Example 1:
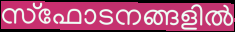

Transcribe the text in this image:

സ്ഫോടനങ്ങളിൽ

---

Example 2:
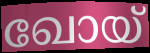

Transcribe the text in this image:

ഖോയ്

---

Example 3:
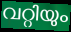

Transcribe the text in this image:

വറ്റിയും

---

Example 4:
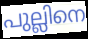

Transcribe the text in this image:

പുല്ലിനെ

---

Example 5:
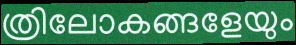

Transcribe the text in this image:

ത്രിലോകങ്ങളേയും